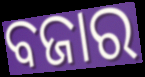
ବଜାର